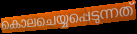
കൊലചെയ്യപ്പെടുന്നത്